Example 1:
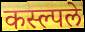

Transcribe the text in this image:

कस्ल्पले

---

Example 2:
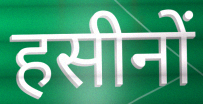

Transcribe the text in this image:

हसीनों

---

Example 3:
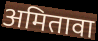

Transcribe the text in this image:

अमितावा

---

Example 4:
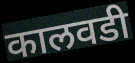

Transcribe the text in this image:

कालवडी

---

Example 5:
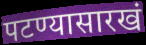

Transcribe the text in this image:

पटण्यासारखं